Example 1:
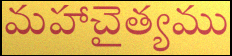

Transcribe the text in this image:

మహాచైత్యము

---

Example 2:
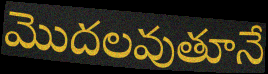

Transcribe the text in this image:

మొదలవుతూనే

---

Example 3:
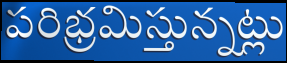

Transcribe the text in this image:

పరిభ్రమిస్తున్నట్లు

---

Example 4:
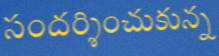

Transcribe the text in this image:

సందర్శించుకున్న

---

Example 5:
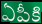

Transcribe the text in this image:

ఏపీకి